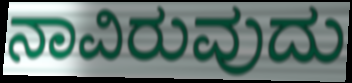
ನಾವಿರುವುದು